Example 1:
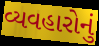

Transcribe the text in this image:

વ્યવહારોનું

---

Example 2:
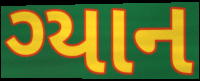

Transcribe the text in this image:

ગ્યાન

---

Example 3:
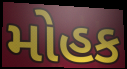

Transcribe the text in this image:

મોહક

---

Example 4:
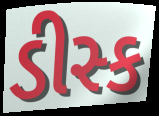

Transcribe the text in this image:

ડીસ્ક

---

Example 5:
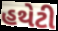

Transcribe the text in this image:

હથેટી